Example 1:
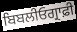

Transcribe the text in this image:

ਬਿਬਲੀਓਗ੍ਰਾਫ਼ੀ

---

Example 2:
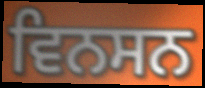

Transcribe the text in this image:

ਵਿਨਸਨ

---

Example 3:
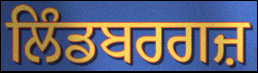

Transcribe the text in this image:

ਲਿੰਡਬਰਗਜ਼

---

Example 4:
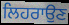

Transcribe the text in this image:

ਲਿਹਰਾਉਣ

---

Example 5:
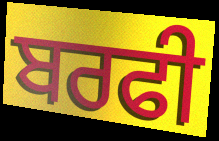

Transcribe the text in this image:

ਬਰਫੀ